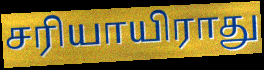
சரியாயிராது